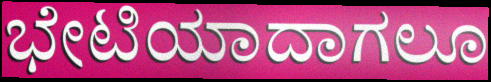
ಭೇಟಿಯಾದಾಗಲೂ